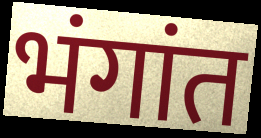
भंगांत